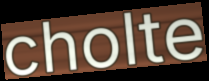
cholte